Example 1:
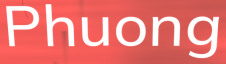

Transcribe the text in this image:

Phuong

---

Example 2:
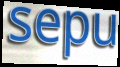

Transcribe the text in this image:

sepu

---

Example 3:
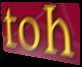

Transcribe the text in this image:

toh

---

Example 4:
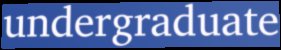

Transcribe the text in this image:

undergraduate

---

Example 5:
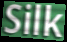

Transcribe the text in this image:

Silk